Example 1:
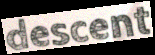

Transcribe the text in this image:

descent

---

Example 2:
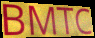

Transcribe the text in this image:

BMTC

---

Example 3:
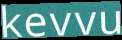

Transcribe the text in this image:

kevvu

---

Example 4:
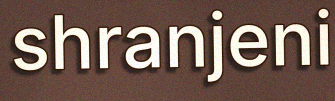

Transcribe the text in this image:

shranjeni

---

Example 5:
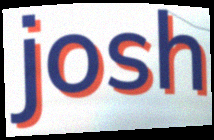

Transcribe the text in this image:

josh